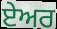
ਏਅਰ